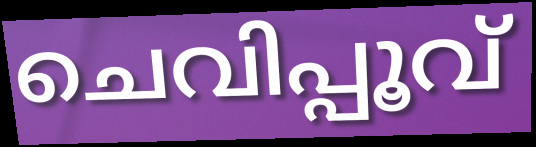
ചെവിപ്പൂവ്